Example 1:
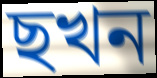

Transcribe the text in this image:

ছখন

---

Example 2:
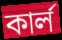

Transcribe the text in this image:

কাৰ্ল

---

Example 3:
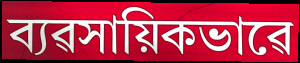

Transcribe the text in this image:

ব্যৱসায়িকভাৱে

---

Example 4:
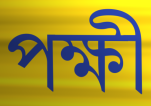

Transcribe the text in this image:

পক্ষী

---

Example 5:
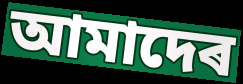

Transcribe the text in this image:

আমাদেৰ